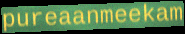
pureaanmeekam